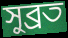
সুব্ৰত